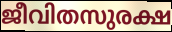
ജീവിതസുരക്ഷ